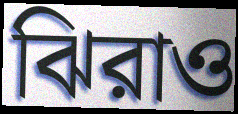
ঝিরাও